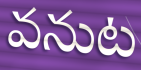
వనుట